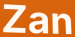
Zan